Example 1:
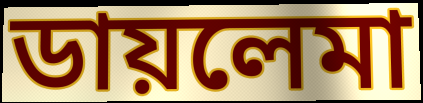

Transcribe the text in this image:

ডায়লেমা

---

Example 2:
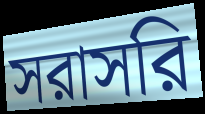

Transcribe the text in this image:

সরাসরি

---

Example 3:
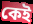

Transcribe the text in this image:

কেই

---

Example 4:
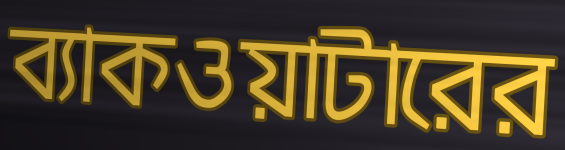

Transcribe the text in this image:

ব্যাকওয়াটারের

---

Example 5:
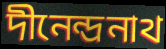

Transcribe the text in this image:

দীনেন্দ্রনাথ